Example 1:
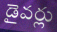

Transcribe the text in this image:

డైవర్లు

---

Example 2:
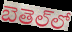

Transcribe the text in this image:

బెతెల్‌లో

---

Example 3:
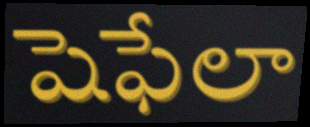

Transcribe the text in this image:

షెఫేలా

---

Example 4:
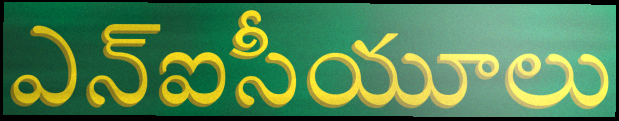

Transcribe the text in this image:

ఎన్ఐసీయూలు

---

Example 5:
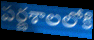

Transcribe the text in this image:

పర్ణశాలలోకి